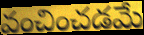
వంచించడమే